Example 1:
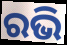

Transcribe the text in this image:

ରଭି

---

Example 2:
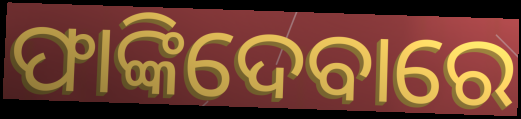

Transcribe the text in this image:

ଫାଙ୍କିଦେବାରେ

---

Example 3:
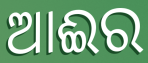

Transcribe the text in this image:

ଆଈର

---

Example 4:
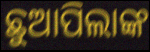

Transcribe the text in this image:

ଛୁଆପିଲାଙ୍କ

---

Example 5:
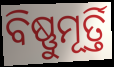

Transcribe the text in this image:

ବିଷ୍ଣୁମୂର୍ତ୍ତି